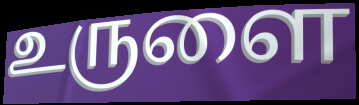
உருளை